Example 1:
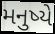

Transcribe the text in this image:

મનુષ્યે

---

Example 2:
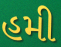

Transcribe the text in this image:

હમી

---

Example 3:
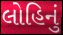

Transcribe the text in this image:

લોહિનું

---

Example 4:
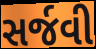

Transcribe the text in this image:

સર્જવી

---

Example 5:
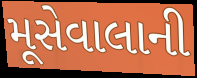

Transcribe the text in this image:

મૂસેવાલાની